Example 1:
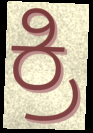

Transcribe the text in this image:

ಕ್ರಿ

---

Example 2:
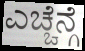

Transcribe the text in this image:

ಎಚ್ಚೆನ್ಗೆ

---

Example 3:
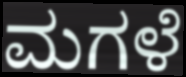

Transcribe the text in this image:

ಮಗಳೆ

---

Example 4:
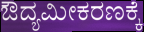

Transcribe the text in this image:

ಔದ್ಯಮೀಕರಣಕ್ಕೆ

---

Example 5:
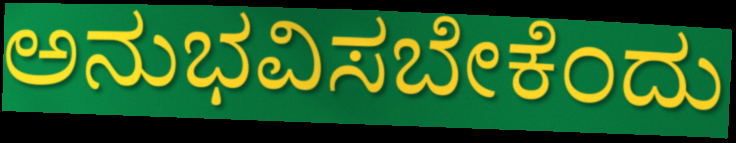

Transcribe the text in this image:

ಅನುಭವಿಸಬೇಕೆಂದು